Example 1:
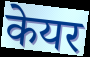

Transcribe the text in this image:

केयर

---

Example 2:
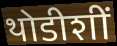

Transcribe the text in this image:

थोडीशीं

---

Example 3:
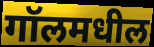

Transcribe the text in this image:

गॉलमधील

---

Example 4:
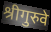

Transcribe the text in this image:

श्रीगुरुवे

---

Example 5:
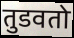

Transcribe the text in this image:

तुडवतो